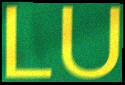
LU